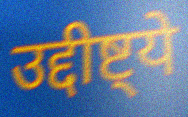
उद्दीष्ट्ये